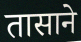
तासाने